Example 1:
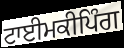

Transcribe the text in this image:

ਟਾਈਮਕੀਪਿੰਗ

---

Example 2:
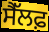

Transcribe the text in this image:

ਸੈੱਲਫ਼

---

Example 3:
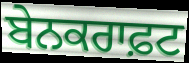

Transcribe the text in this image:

ਬੇਨਕਰਾਫ਼ਟ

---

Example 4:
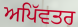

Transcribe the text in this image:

ਅਪਿੱਵਤਰ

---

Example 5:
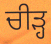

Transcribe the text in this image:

ਚੀੜ੍ਹ